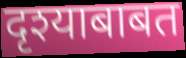
दृश्याबाबत